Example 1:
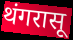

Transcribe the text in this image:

थंगरासू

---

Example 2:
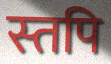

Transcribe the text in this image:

स्‍तपि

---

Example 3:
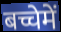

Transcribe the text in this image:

बच्चेमें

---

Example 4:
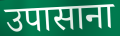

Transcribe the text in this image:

उपासाना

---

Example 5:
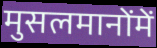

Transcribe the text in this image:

मुसलमानोंमें